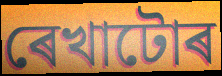
ৰেখাটোৰ